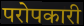
परोपकारी